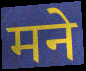
मने